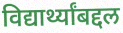
विद्यार्थ्यांबद्दल